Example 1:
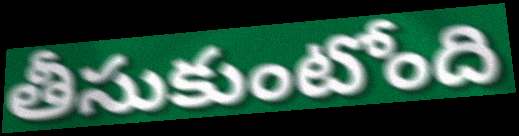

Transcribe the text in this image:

తీసుకుంటోంది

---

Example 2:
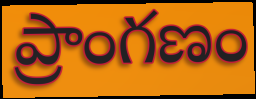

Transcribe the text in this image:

ప్రాంగణం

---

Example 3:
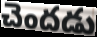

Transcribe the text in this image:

చెందడు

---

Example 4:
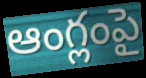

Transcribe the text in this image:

ఆంగ్లంపై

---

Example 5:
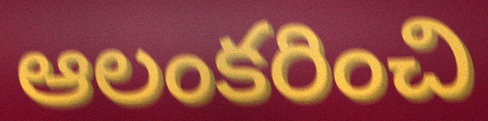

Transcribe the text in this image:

ఆలంకరించి